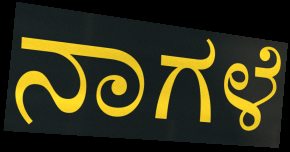
ನಾಗಳೆ